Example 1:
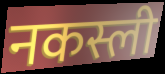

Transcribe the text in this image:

नकस्ली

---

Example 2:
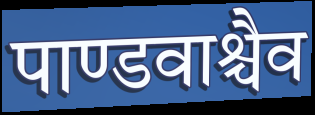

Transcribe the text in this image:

पाण्डवाश्चैव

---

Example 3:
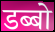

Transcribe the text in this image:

डब्बो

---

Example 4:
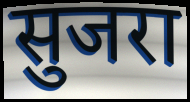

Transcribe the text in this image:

सुजरा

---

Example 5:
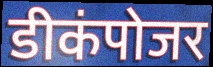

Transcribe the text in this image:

डीकंपोजर